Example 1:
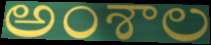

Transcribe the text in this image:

అంశాల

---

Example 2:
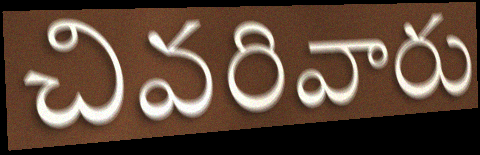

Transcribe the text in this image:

చివరివారు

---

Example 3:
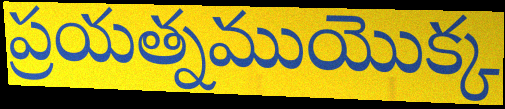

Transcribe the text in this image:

ప్రయత్నముయొక్క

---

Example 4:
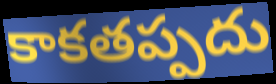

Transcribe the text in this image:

కాకతప్పదు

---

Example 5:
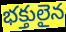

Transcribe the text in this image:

భక్తులైన